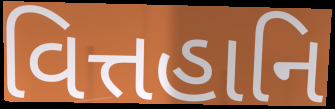
વિત્તહાનિ